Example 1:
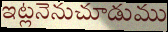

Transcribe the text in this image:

ఇట్లనెనుచూడుము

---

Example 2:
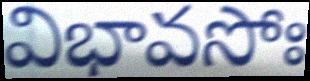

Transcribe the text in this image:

విభావసోః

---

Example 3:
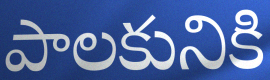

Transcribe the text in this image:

పాలకునికి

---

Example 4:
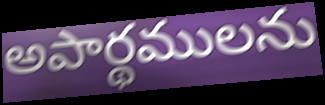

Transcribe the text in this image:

అపార్థములను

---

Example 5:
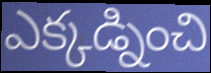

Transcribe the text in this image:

ఎక్కడ్నించి